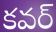
కవర్